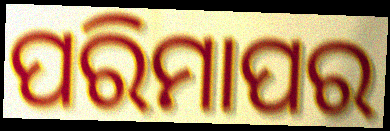
ପରିମାପର